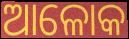
ଆଳୋକ